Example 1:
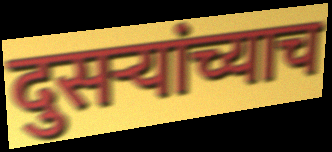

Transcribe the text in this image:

दुसऱ्यांच्याच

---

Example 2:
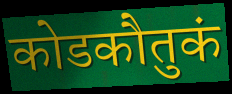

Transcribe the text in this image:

कोडकौतुकं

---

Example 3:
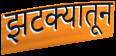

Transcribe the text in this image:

झटक्यातून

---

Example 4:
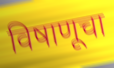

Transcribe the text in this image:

विषाणूचा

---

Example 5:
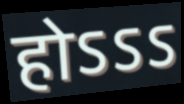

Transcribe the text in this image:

होऽऽऽ